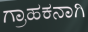
ಗ್ರಾಹಕನಾಗಿ